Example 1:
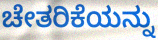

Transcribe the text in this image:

ಚೇತರಿಕೆಯನ್ನು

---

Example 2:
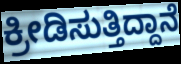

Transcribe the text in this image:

ಕ್ರೀಡಿಸುತ್ತಿದ್ದಾನೆ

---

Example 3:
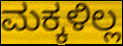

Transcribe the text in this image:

ಮಕ್ಕಳಿಲ್ಲ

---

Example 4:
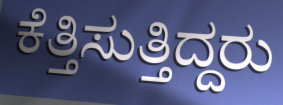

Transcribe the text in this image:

ಕೆತ್ತಿಸುತ್ತಿದ್ದರು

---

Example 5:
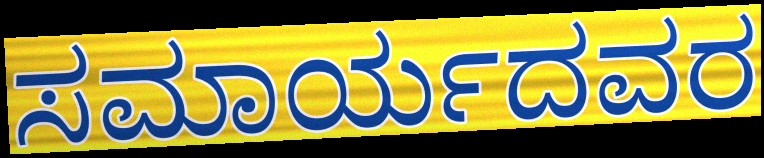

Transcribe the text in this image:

ಸಮಾರ್ಯದವರ